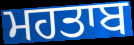
ਮਹਤਾਬ